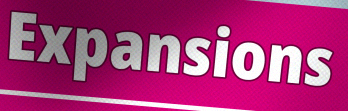
Expansions